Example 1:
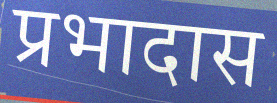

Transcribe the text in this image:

प्रभादास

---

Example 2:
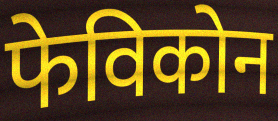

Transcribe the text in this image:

फेविकोन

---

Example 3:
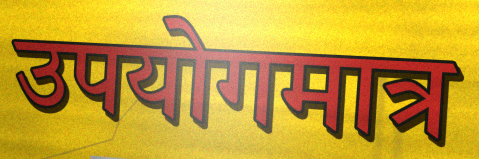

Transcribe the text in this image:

उपयोगमात्र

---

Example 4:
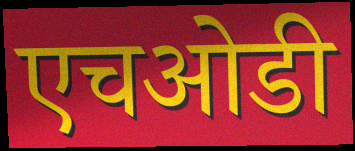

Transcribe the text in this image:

एचओडी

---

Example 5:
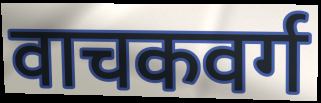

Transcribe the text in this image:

वाचकवर्ग